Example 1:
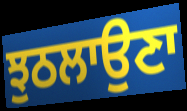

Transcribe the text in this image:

ਝੁਠਲਾਉਣਾ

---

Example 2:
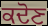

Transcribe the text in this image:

ਕਦੋਣ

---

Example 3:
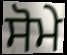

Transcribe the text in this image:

ਸੋਮੇ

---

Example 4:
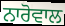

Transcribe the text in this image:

ਨਾਰੋਵਾਲ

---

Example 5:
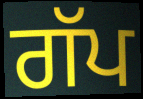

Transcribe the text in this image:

ਗੱਪ